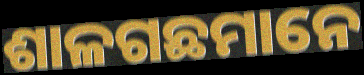
ଶାଳଗଛମାନେ